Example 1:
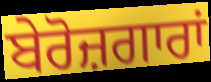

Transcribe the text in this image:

ਬੇਰੋਜ਼ਗਾਰਾਂ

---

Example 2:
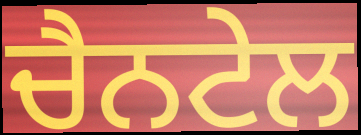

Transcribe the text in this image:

ਚੈਨਟੇਲ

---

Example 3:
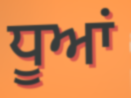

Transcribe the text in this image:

ਧੂਆਂ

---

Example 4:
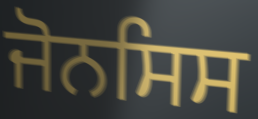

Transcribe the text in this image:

ਜੋਨਸਿਸ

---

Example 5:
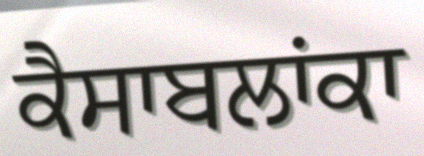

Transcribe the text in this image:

ਕੈਸਾਬਲਾਂਕਾ